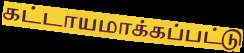
கட்டாயமாக்கப்பட்டு